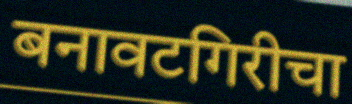
बनावटगिरीचा